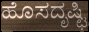
ಹೊಸದೃಷ್ಟಿ